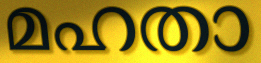
മഹതാ